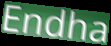
Endha